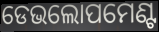
ଡେଭଲୋପମେଣ୍ଟ